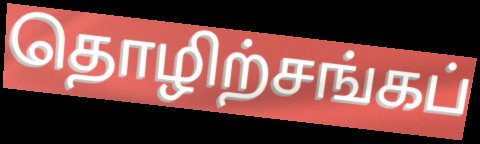
தொழிற்சங்கப்